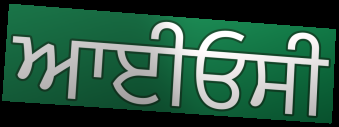
ਆਈਓਸੀ